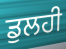
ਡੁਲਹੀ